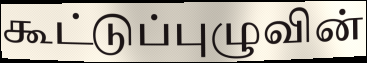
கூட்டுப்புழுவின்